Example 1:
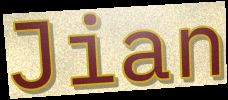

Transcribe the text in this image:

Jian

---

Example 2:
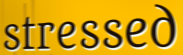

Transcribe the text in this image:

stressed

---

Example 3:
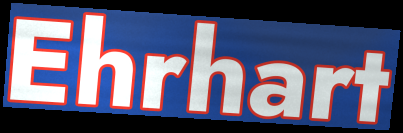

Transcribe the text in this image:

Ehrhart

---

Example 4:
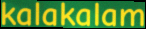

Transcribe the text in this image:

kalakalam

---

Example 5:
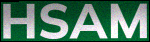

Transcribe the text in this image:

HSAM